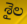
శైల